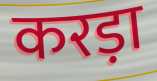
करड़ा